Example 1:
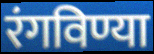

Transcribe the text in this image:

रंगविण्या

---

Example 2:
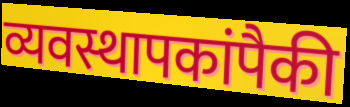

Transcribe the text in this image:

व्यवस्थापकांपैकी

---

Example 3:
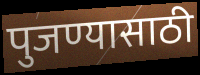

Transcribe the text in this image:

पुजण्यासाठी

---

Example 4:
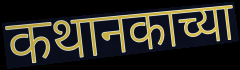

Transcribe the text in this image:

कथानकाच्या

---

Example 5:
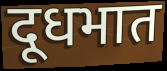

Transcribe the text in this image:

दूधभात